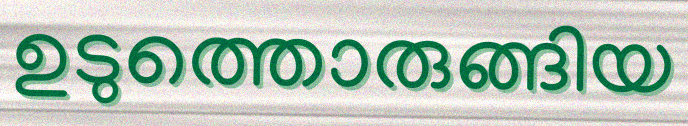
ഉടുത്തൊരുങ്ങിയ